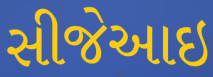
સીજેઆઇ